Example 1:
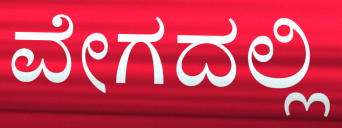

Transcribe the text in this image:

ವೇಗದಲ್ಲಿ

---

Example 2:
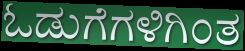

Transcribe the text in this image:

ಓಡುಗೆಗಳಿಗಿಂತ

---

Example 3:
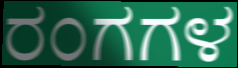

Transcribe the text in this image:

ರಂಗಗಳ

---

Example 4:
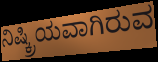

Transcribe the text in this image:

ನಿಷ್ಕ್ರಿಯವಾಗಿರುವ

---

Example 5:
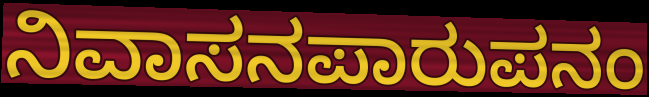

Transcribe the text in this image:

ನಿವಾಸನಪಾರುಪನಂ